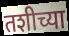
तशीच्या